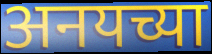
अनयच्या